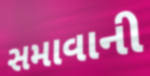
સમાવાની